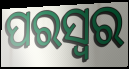
ପରସ୍ୱର